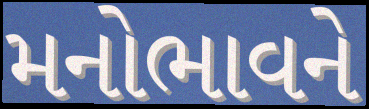
મનોભાવને